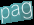
pag